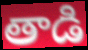
తాడి